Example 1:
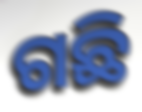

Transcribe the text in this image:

ଗଛି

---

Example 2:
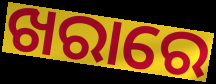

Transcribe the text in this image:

ଖରାରେ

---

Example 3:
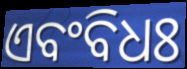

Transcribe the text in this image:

ଏବଂବିଧଃ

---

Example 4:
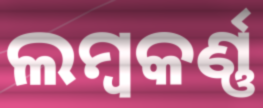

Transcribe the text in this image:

ଲମ୍ୱକର୍ଣ୍ଣ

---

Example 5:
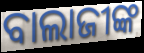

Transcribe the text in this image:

ବାଲାଜୀଙ୍କ